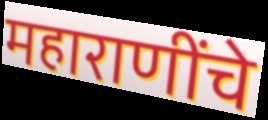
महाराणींचे